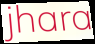
jhara